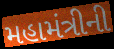
મહામંત્રીની